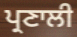
ਪ੍ਰਣਾਲੀ